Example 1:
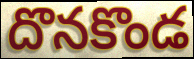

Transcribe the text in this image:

దొనకొండ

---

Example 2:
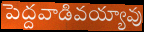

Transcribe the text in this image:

పెద్దవాడివయ్యావు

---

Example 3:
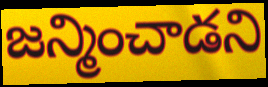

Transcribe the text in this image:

జన్మించాడని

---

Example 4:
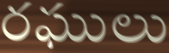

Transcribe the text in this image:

రఘులు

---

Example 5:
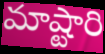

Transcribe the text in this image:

మాష్టారి